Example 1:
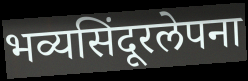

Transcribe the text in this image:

भव्यसिंदूरलेपना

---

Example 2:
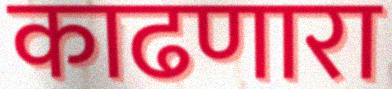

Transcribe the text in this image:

काढणारा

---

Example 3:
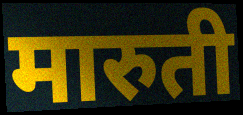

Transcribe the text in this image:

मारुती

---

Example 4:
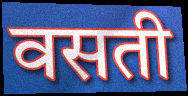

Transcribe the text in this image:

वसती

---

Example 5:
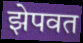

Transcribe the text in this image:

झेपवत